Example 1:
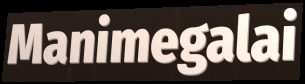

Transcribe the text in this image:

Manimegalai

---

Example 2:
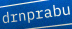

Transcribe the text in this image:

drnprabu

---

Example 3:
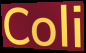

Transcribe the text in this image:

Coli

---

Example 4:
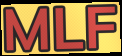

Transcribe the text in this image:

MLF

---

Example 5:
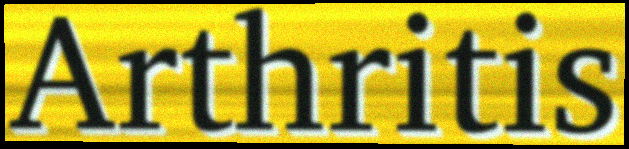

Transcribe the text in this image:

Arthritis